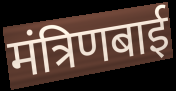
मंत्रिणबाई